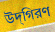
উদ্‌গিরণ